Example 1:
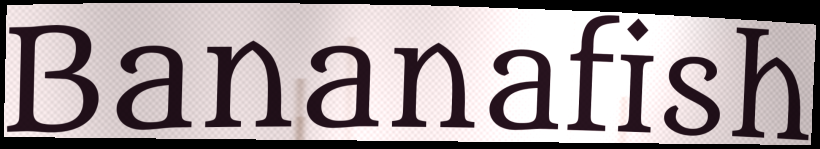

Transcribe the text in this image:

Bananafish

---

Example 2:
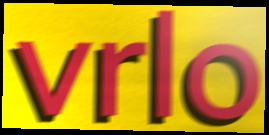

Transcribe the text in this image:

vrlo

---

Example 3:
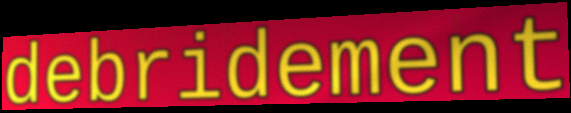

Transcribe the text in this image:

debridement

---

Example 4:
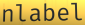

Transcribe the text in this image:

nlabel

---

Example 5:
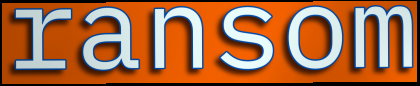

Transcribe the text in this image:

ransom